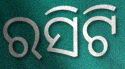
ରସିଟି